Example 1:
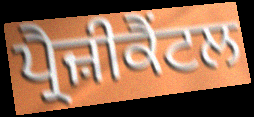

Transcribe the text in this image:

ਪ੍ਰੈਜ਼ੀਕੈਂਟਲ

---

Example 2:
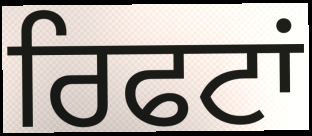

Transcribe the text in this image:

ਰਿਫਟਾਂ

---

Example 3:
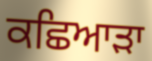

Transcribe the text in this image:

ਕਛਿਆੜਾ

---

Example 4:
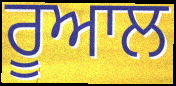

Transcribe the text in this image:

ਰੂਆਲ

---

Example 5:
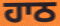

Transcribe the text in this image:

ਹਾਠ